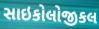
સાઇકોલોજીકલ